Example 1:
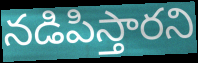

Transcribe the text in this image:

నడిపిస్తారని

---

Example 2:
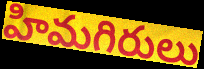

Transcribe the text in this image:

హిమగిరులు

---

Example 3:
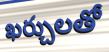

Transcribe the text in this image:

ఖర్చులతో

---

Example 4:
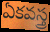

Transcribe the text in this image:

ఏకవస్త్ర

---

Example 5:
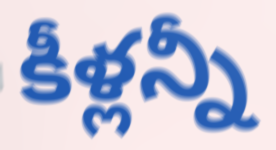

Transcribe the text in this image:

కీళ్లన్నీ